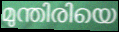
മുന്തിരിയെ